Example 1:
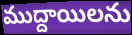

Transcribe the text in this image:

ముద్దాయిలను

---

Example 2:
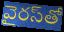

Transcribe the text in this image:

వైరస్‌తో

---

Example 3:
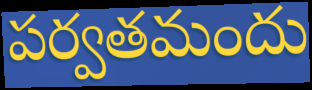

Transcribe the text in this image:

పర్వతమందు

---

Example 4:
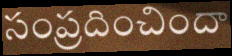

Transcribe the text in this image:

సంప్రదించిందా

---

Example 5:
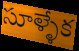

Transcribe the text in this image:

సూళ్ళేక